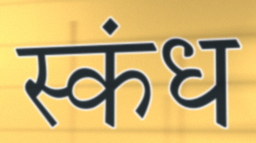
स्कंध